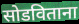
सोडविताना